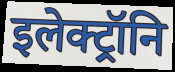
इलेक्ट्रॉनि